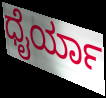
ಧೈರ್ಯಾ